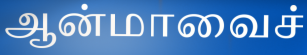
ஆன்மாவைச்